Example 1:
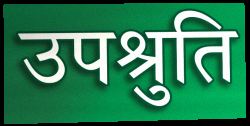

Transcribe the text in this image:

उपश्रुति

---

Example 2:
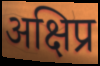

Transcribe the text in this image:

अक्षिप्र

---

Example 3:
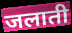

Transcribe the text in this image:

जलाती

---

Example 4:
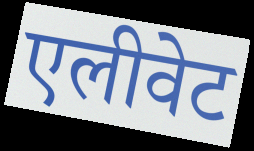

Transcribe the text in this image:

एलीवेट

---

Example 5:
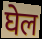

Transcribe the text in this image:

घेल